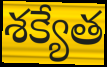
శక్యేత